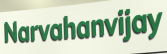
Narvahanvijay